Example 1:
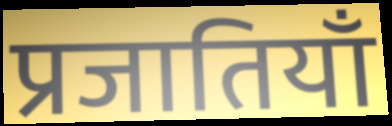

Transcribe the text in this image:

प्रजातियाँ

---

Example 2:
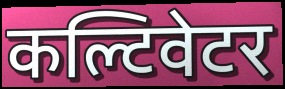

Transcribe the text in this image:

कल्टिवेटर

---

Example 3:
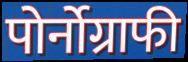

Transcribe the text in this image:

पोर्नोग्राफी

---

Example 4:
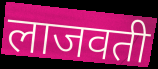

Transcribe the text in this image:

लाजवती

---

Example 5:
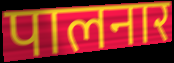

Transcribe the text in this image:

पालनार